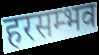
हरसम्भव